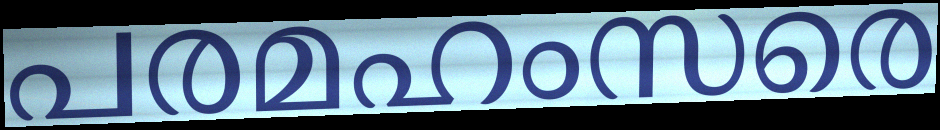
പരമഹംസരെ